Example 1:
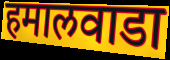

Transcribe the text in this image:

हमालवाडा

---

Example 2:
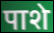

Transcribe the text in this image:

पाशे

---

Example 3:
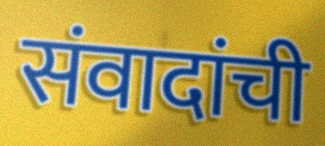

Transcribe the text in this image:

संवादांची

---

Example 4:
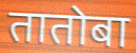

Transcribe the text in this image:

तातोबा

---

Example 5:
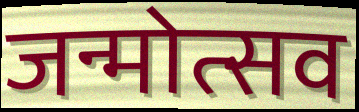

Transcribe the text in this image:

जन्मोत्सव